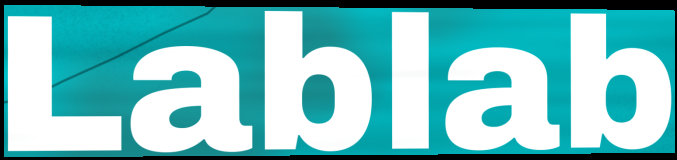
Lablab